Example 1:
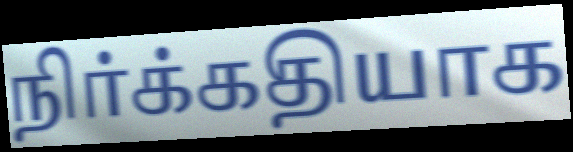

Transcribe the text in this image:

நிர்க்கதியாக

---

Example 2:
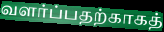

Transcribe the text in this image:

வளர்ப்பதற்காகத்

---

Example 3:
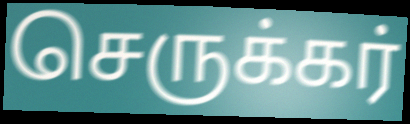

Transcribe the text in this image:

செருக்கர்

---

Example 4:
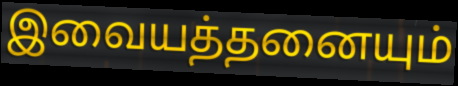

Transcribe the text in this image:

இவையத்தனையும்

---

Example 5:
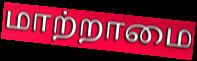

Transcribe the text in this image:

மாற்றாமை